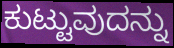
ಕುಟ್ಟುವುದನ್ನು